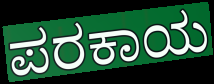
ಪರಕಾಯ